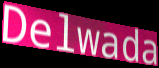
Delwada